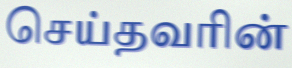
செய்தவரின்